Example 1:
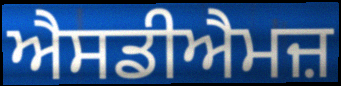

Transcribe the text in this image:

ਐਸਡੀਐਮਜ਼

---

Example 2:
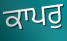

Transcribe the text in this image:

ਕਾਪਰੁ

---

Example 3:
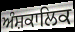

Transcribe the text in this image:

ਅੰਸ਼ਕਾਲਿਕ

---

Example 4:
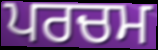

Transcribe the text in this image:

ਪਰਚਮ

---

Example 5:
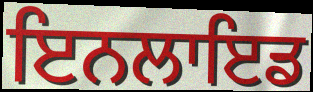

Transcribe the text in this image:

ਇਨਲਾਇਡ